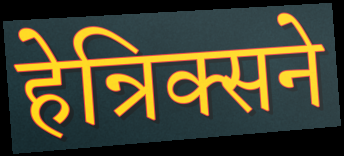
हेन्रिक्सने